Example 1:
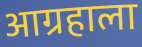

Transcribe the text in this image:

आग्रहाला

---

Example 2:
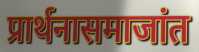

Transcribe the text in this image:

प्रार्थनासमाजांत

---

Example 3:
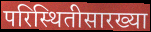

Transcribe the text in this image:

परिस्थितीसारख्या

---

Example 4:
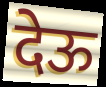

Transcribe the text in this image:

देऊ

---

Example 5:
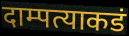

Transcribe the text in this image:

दाम्पत्याकडं